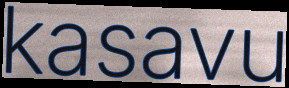
kasavu